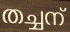
തച്ചന്